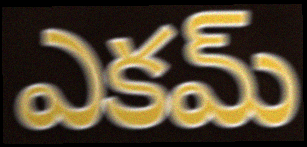
ఎకమ్